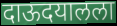
दाऊदयालला